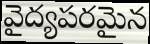
వైద్యపరమైన